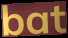
bat